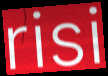
risi